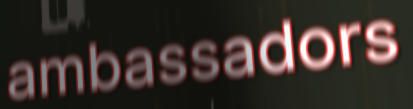
ambassadors